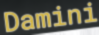
Damini